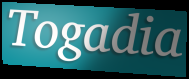
Togadia